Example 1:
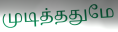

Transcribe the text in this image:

முடித்ததுமே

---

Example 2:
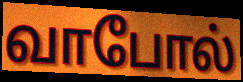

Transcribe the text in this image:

வாபோல்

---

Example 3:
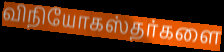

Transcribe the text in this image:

விநியோகஸ்தர்களை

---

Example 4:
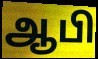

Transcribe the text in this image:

ஆபி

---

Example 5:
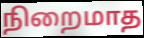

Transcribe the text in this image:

நிறைமாத